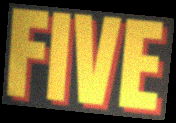
FIVE